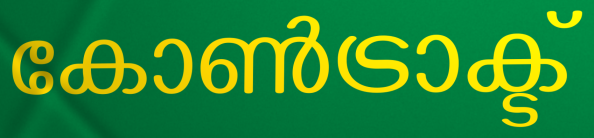
കോൺട്രാക്ട്